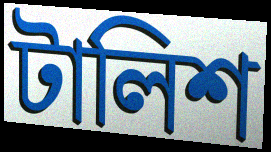
টালিশ